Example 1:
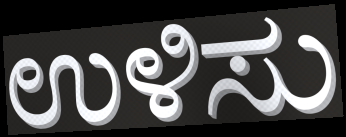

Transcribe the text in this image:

ಉಳಿಸು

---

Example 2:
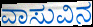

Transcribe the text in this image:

ವಾಸುವಿನ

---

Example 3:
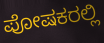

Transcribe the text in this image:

ಪೋಷಕರಲ್ಲಿ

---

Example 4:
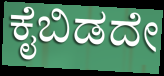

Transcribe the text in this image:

ಕೈಬಿಡದೇ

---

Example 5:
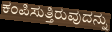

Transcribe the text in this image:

ಕಂಪಿಸುತ್ತಿರುವುದನ್ನು